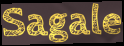
Sagale